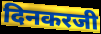
दिनकरजी